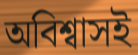
অবিশ্বাসই